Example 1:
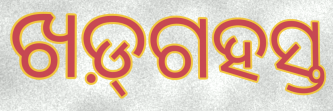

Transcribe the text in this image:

ଖଡ଼୍‌ଗହସ୍ତ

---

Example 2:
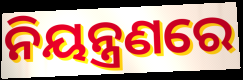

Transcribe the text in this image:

ନିୟନ୍ତ୍ରଣରେ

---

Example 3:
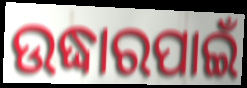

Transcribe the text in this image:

ଉଦ୍ଧାରପାଇଁ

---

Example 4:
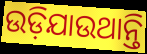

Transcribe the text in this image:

ଉଡ଼ିଯାଉଥାନ୍ତି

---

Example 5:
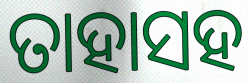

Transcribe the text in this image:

ତାହାସହ